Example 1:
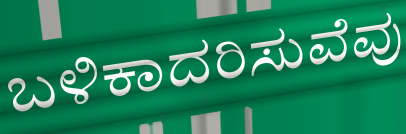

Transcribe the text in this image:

ಬಳಿಕಾದರಿಸುವೆವು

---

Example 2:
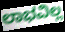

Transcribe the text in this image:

ಲಾಭವಿಲ್ಲ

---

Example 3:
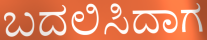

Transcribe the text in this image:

ಬದಲಿಸಿದಾಗ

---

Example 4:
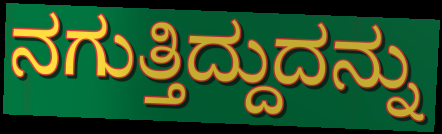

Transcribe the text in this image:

ನಗುತ್ತಿದ್ದುದನ್ನು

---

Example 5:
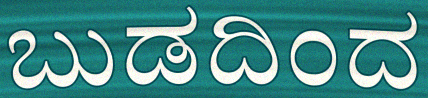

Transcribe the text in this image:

ಬುಡದಿಂದ